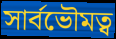
সার্বভৌমত্ব